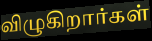
விழுகிறார்கள்